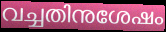
വച്ചതിനുശേഷം